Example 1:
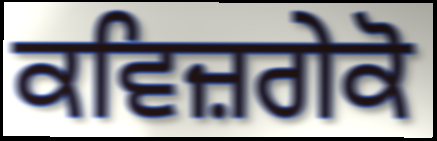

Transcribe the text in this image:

ਕਵਿਜ਼ਗੇਕੋ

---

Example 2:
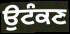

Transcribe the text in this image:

ਉਟੰਕਣ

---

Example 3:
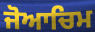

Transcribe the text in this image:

ਜੋਆਚਿਮ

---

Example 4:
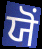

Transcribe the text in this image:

ਯੋਂ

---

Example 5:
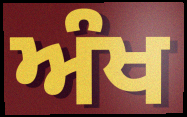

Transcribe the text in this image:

ਅੰਖ